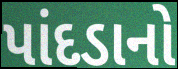
પાંદડાનો